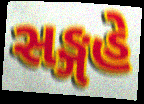
સઙ્ગહે